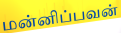
மன்னிப்பவன்